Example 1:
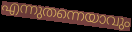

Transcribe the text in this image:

എന്നുതന്നെയാവും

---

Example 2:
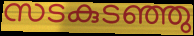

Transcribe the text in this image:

സടകുടഞ്ഞു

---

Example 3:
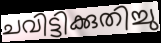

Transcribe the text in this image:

ചവിട്ടിക്കുതിച്ചു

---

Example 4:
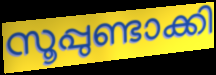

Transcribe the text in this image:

സൂപ്പുണ്ടാക്കി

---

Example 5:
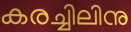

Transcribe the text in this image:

കരച്ചിലിനു